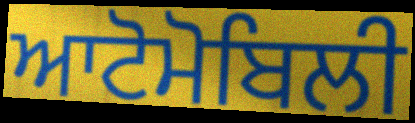
ਆਟੋਮੋਬਿਲੀ